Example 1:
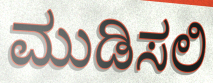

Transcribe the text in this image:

ಮುಡಿಸಲಿ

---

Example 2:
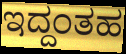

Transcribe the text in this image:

ಇದ್ದಂತಹ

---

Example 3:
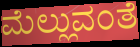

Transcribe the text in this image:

ಮೆಲ್ಲುವಂತೆ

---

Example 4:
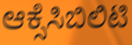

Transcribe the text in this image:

ಆಕ್ಸೆಸಿಬಿಲಿಟಿ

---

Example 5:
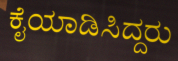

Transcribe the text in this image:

ಕೈಯಾಡಿಸಿದ್ದರು